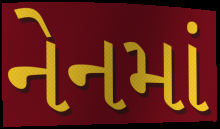
નેનમાં